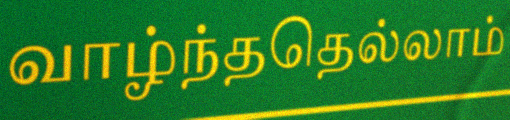
வாழ்ந்ததெல்லாம்